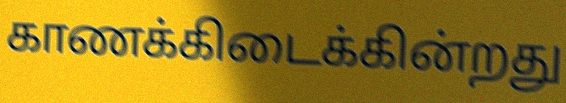
காணக்கிடைக்கின்றது